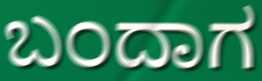
ಬಂದಾಗ